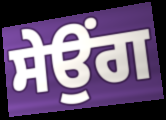
ਸੇਉਂਗ